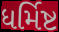
ધર્મિષ્ટ